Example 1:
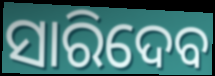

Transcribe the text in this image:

ସାରିଦେବ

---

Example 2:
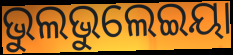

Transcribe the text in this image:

ଭୁଲଭୁଲେଇୟା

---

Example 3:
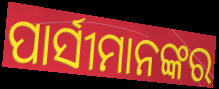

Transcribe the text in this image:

ପାର୍ସୀମାନଙ୍କର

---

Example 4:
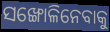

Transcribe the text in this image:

ସଙ୍ଖୋଳିନେବାକୁ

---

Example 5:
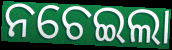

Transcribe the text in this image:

ନଚେଇଲା